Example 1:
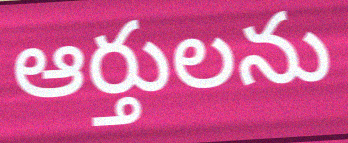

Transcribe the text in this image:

ఆర్తులను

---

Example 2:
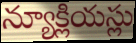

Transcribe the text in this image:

న్యూక్లియస్లు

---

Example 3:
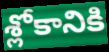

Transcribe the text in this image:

శ్లోకానికి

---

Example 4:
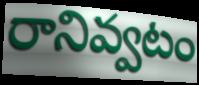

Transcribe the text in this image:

రానివ్వటం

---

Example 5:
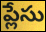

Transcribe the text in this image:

ప్లేసు